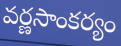
వర్ణసాంకర్యం